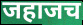
जहाजच